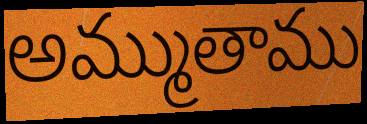
అమ్ముతాము